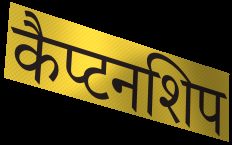
कैप्टनशिप